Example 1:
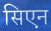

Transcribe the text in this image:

सिएन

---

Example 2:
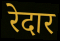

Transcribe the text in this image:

रेदार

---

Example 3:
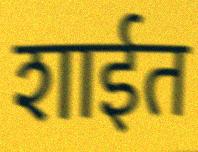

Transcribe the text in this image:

शाईत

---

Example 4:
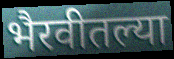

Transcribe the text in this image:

भैरवीतल्या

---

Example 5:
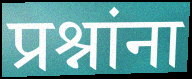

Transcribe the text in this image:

प्रश्नांना